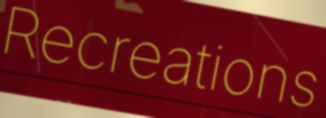
Recreations